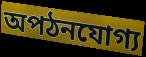
অপঠনযোগ্য